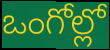
ఒంగోల్లో